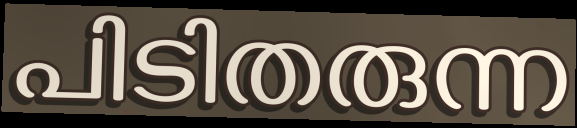
പിടിതരുന്ന